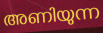
അണിയുന്ന